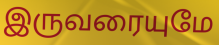
இருவரையுமே